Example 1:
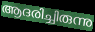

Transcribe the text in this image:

ആദരിച്ചിരുന്നു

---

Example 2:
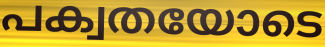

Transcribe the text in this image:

പക്വതയോടെ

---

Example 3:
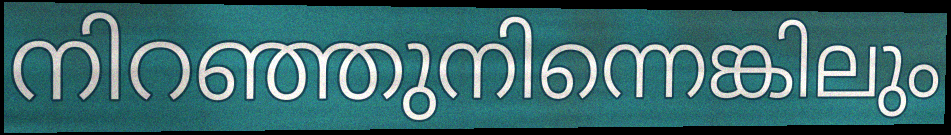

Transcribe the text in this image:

നിറഞ്ഞുനിന്നെങ്കിലും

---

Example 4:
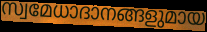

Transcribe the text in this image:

സ്വമേധാദാനങ്ങളുമായ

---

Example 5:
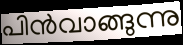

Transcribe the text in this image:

പിൻവാങ്ങുന്നു